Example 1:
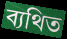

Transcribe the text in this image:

ব্যথিত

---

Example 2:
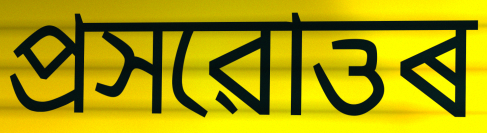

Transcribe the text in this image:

প্ৰসৱোত্তৰ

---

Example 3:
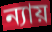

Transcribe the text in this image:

ন্যায়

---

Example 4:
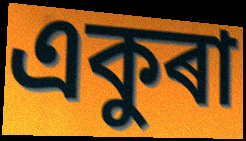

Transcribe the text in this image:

একুৰা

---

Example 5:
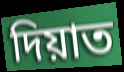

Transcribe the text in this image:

দিয়াত